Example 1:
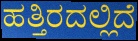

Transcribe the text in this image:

ಹತ್ತಿರದಲ್ಲಿದೆ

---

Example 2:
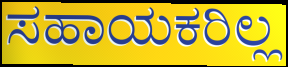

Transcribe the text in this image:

ಸಹಾಯಕರಿಲ್ಲ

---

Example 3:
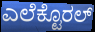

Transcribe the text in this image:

ಎಲೆಕ್ಟೊರಲ್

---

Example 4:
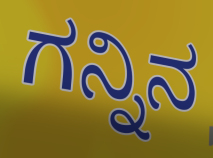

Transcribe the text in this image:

ಗನ್ನಿನ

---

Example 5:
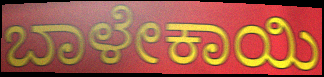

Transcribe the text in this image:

ಬಾಳೇಕಾಯಿ